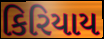
કિરિયાય